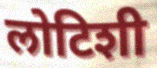
लोटिशी